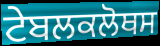
ਟੇਬਲਕਲੋਥਸ